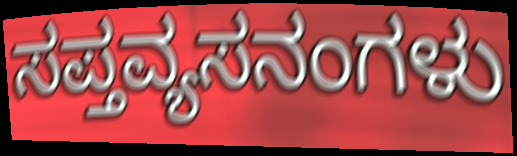
ಸಪ್ತವ್ಯಸನಂಗಳು